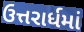
ઉત્તરાર્ધમાં